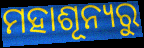
ମହାଶୂନ୍ୟରୁ